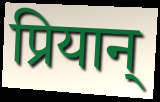
प्रियान्